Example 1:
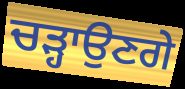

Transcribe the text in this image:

ਚੜ੍ਹਾਉਣਗੇ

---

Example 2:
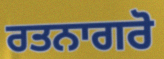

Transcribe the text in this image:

ਰਤਨਾਗਰੋ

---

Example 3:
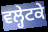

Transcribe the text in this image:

ਵਲ੍ਹੇਟਕੇ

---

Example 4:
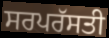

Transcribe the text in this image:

ਸਰਪਰੱਸਤੀ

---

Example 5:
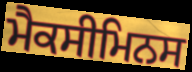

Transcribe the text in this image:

ਮੈਕਸੀਮਿਨਸ